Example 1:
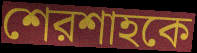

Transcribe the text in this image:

শেরশাহকে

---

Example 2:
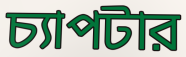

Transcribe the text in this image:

চ্যাপটার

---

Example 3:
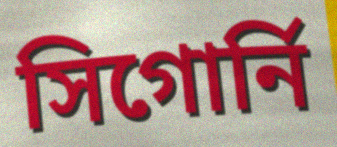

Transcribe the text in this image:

সিগোর্নি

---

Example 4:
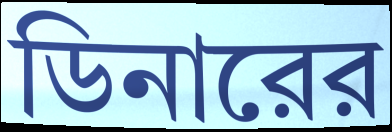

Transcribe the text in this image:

ডিনারের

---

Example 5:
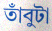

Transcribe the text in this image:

তাঁবুটা